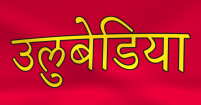
उलुबेडिया